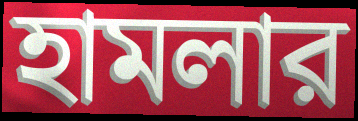
হামলার